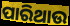
ପାରିଥାଉ